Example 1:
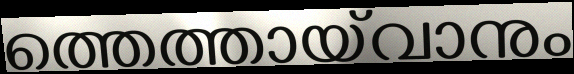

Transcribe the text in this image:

ത്തെത്തായ്‌വാനും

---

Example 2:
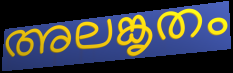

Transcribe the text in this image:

അലങ്കൃതം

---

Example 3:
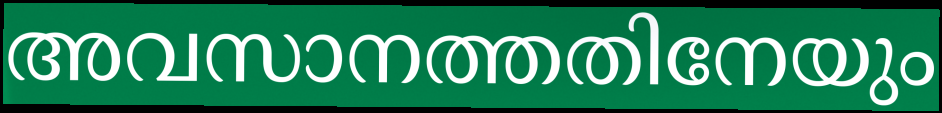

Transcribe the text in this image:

അവസാനത്തതിനേയും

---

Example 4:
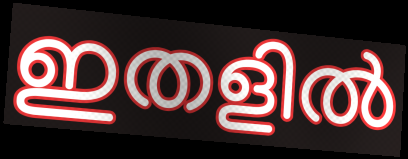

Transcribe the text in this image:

ഇതളിൽ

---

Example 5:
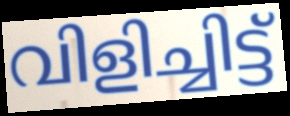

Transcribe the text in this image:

വിളിച്ചിട്ട്